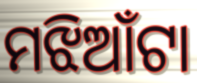
ମଝିଆଁଟା